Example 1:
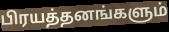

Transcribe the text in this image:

பிரயத்தனங்களும்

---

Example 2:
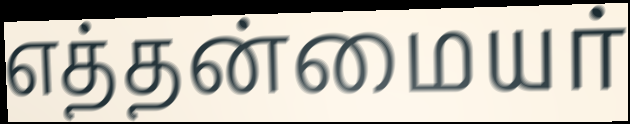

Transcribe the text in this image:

எத்தன்மையர்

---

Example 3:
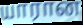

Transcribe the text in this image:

யாரான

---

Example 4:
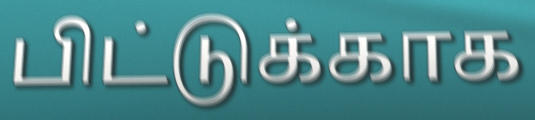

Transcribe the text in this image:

பிட்டுக்காக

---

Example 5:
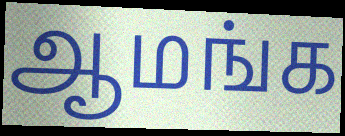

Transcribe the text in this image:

ஆமங்க